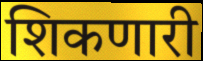
शिकणारी